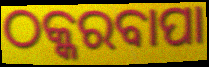
ଠକ୍କରବାପା